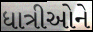
ધાત્રીઓને